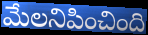
మేలనిపించింది